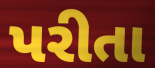
પરીતા